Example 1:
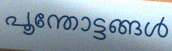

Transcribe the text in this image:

പൂന്തോട്ടങ്ങൾ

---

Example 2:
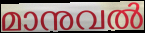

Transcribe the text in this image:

മാനുവൽ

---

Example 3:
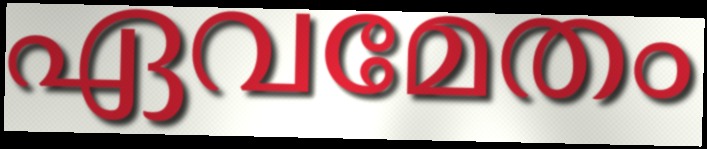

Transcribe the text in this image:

ഏവമേതം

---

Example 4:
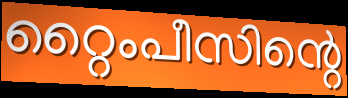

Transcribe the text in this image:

റ്റൈംപീസിന്റെ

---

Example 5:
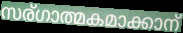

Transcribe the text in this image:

സര്ഗാത്മകമാക്കാന്